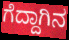
ಗೆದ್ದಾಗಿನ